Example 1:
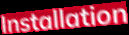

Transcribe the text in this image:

Installation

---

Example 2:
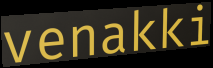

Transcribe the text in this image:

venakki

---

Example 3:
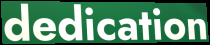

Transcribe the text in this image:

dedication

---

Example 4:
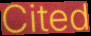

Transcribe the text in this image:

Cited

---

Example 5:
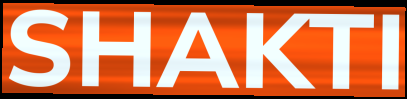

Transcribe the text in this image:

SHAKTI